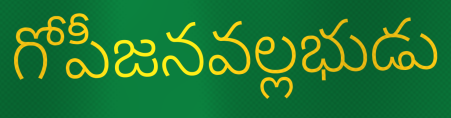
గోపీజనవల్లభుడు